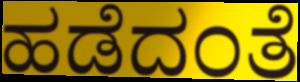
ಹಡೆದಂತೆ